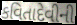
કવિતાદેવીની